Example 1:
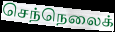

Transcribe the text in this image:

செந்நெலைக்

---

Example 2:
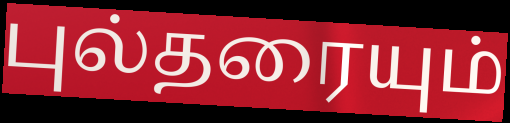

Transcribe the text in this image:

புல்தரையும்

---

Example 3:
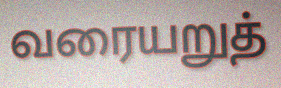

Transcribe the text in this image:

வரையறுத்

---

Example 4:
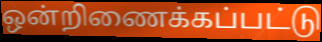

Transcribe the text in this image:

ஒன்றிணைக்கப்பட்டு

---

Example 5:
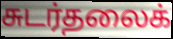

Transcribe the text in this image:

சுடர்தலைக்